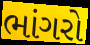
ભાંગરો